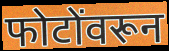
फोटोंवरून